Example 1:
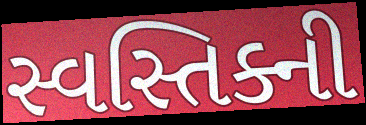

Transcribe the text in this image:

સ્વસ્તિક્ની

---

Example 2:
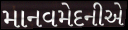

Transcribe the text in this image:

માનવમેદનીએ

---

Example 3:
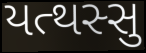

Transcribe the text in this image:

યત્થસ્સુ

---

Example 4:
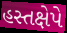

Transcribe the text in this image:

હસ્તક્ષેપે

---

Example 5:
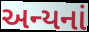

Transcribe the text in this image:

અન્યનાં